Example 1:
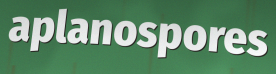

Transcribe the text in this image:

aplanospores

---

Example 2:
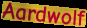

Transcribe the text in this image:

Aardwolf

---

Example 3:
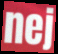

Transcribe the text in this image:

nej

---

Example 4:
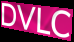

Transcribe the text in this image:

DVLC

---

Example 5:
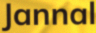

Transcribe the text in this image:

Jannal